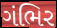
ગંભિર